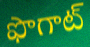
ఫొగాట్